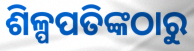
ଶିଳ୍ପପତିଙ୍କଠାରୁ